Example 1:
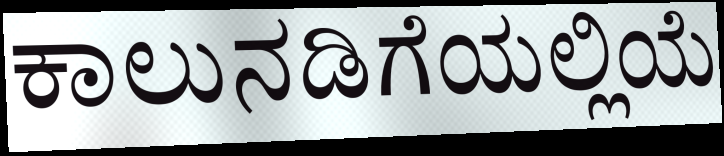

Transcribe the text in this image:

ಕಾಲುನಡಿಗೆಯಲ್ಲಿಯೆ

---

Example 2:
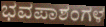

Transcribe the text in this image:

ಭವಪಾಶಂಗಳ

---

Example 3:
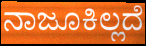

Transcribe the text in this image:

ನಾಜೂಕಿಲ್ಲದೆ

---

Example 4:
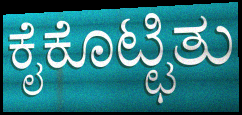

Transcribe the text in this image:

ಕೈಕೊಟ್ಟಿತು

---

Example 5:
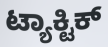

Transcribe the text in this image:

ಟ್ಯಾಕ್ಟಿಕ್